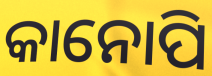
କାନୋପି